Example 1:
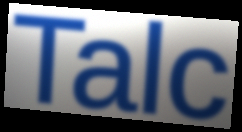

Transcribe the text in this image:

Talc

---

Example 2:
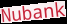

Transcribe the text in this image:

Nubank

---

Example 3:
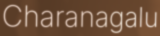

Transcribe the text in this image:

Charanagalu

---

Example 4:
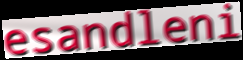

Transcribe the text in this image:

esandleni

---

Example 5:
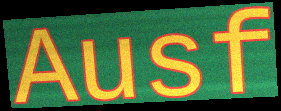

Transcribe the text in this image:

Ausf